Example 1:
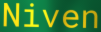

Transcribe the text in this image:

Niven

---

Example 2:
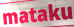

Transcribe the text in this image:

mataku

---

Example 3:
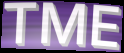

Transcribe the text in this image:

TME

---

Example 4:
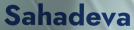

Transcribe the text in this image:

Sahadeva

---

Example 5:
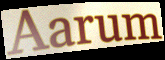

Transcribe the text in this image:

Aarum